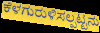
ಕೆಳಗುರುಳಿಸಲ್ಪಟ್ಟನು